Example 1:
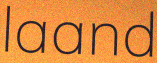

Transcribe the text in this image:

laand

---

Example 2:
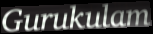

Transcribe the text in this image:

Gurukulam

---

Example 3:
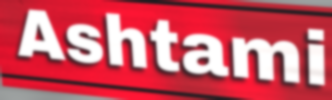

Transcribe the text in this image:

Ashtami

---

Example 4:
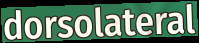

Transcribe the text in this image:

dorsolateral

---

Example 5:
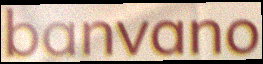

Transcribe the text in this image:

banvano